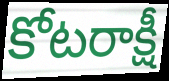
కోటరాక్షీ